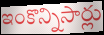
ఇంకొన్నిసార్లు